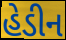
હેડીન